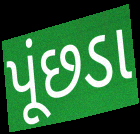
પૂંછડા